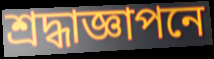
শ্রদ্ধাজ্ঞাপনে